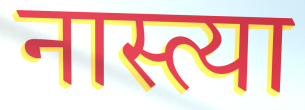
नास्त्या